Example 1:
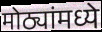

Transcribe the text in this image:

मोठ्यांमध्ये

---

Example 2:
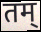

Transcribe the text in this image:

तम्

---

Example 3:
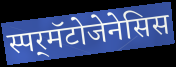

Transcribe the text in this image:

स्पर्मॅटोजेनेसिस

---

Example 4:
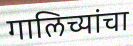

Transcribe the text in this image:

गालिच्यांचा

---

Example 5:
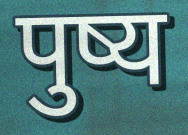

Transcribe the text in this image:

पुष्य